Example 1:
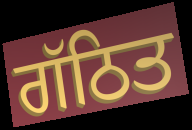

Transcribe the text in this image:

ਗੱਠਿਤ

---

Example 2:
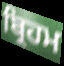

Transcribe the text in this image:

ਬ੍ਰਿਹਮ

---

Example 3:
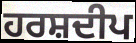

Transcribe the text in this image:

ਹਰਸ਼ਦੀਪ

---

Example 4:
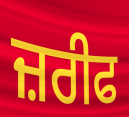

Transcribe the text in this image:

ਜ਼ਰੀਫ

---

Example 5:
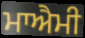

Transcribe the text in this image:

ਮਾਐਮੀ